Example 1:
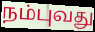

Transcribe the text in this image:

நம்புவது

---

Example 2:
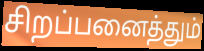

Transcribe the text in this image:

சிறப்பனைத்தும்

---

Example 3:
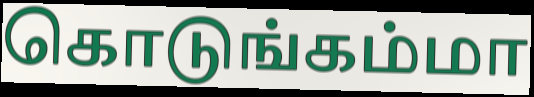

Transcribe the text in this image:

கொடுங்கம்மா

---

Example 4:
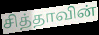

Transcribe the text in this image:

சித்தாவின்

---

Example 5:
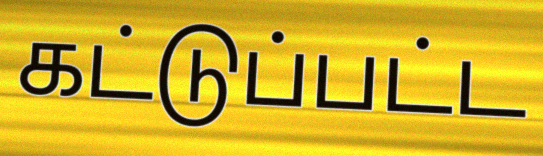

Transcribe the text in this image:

கட்டுப்பட்ட